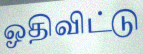
ஓதிவிட்டு